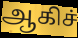
ஆகிச்